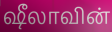
ஷீலாவின்